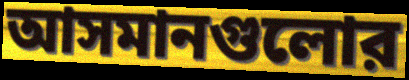
আসমানগুলোর